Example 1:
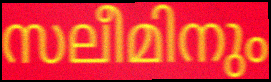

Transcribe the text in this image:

സലീമിനും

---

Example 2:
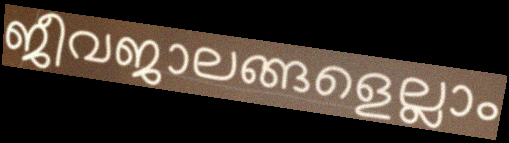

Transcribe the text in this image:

ജീവജാലങ്ങളെല്ലാം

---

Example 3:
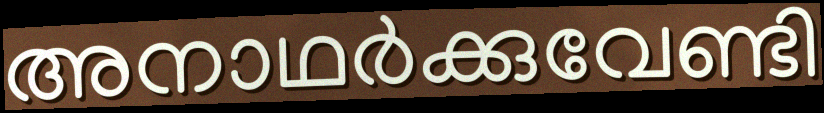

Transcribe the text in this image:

അനാഥർക്കുവേണ്ടി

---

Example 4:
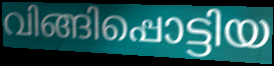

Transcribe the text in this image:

വിങ്ങിപ്പൊട്ടിയ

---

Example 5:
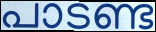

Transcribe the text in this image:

പാടണ്ട